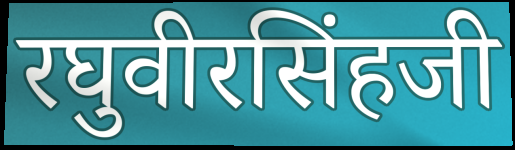
रघुवीरसिंहजी